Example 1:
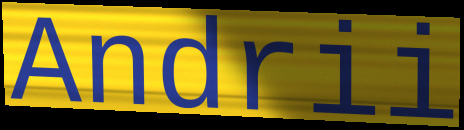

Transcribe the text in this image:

Andrii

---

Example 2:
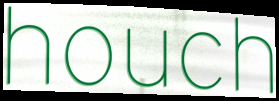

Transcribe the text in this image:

houch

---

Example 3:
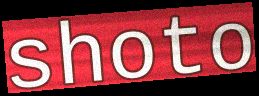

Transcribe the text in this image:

shoto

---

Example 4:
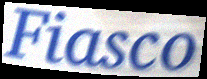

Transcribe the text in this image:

Fiasco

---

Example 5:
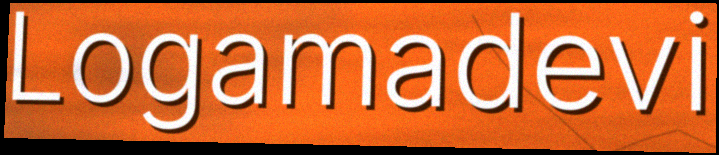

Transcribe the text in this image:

Logamadevi